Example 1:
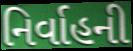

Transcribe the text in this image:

નિર્વાહની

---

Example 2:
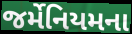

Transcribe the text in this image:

જર્મેનિયમના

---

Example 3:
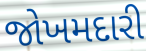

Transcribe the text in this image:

જોખમદારી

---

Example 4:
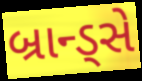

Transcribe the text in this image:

બ્રાન્ડ્સે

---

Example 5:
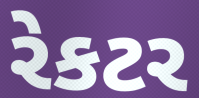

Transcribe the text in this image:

રેકટર